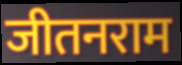
जीतनराम